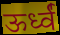
ऊर्ध्व॑